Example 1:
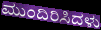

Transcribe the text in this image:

ಮುಂದಿರಿಸಿದಳು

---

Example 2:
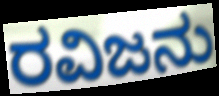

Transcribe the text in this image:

ರವಿಜನು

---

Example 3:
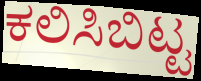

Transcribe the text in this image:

ಕಲಿಸಿಬಿಟ್ಟ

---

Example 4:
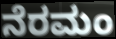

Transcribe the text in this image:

ನೆರಮಂ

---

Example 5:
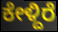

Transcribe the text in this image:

ಕೇಳ್ದಿರೆ